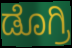
ಡೊಗ್ರಿ